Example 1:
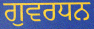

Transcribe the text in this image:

ਗੁਵਰਧਨ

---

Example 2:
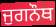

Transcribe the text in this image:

ਜੁਗਨੌਥ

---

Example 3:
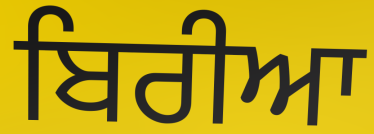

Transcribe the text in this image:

ਬਿਰੀਆ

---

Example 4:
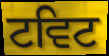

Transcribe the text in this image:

ਟਵਿਟ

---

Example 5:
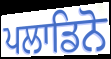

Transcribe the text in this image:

ਪਲਾਡਿਨੋ